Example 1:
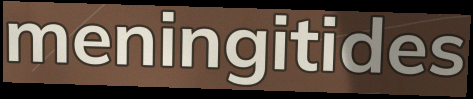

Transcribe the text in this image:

meningitides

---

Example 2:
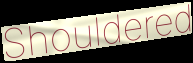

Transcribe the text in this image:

Shouldered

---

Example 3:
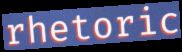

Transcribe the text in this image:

rhetoric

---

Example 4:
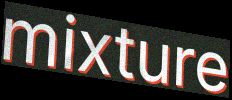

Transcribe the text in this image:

mixture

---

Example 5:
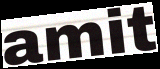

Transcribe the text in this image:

amit